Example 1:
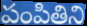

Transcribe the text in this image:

పంపితిని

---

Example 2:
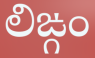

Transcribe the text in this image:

లిఙ్గం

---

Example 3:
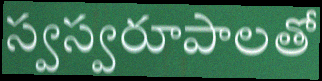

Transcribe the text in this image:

స్వస్వరూపాలతో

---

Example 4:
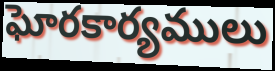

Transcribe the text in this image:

ఘోరకార్యములు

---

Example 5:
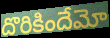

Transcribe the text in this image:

దొరికిందేమో